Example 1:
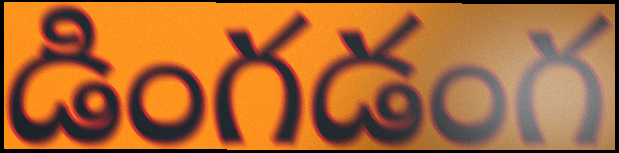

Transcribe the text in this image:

డింగడంగ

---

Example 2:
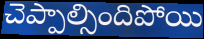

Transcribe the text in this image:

చెప్పాల్సిందిపోయి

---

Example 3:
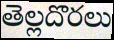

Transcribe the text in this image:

తెల్లదొరలు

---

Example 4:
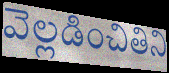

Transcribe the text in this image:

వెల్లడించితిని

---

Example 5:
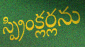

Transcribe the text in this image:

స్ప్రింక్లర్లను